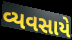
વ્યવસાયે